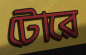
টোৱে